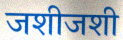
जशीजशी